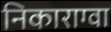
निकाराग्वा